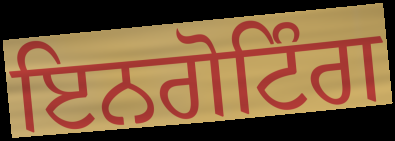
ਇਨਗੋਟਿੰਗ